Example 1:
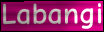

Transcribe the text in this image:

Labangi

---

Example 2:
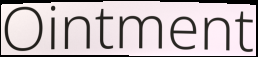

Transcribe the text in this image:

Ointment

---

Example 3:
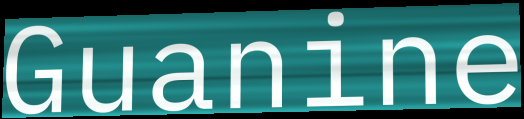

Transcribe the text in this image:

Guanine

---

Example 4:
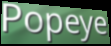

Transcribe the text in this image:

Popeye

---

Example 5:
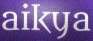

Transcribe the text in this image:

aikya